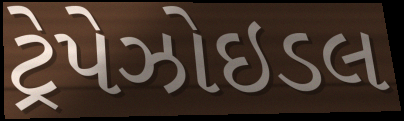
ટ્રેપેઝોઇડલ